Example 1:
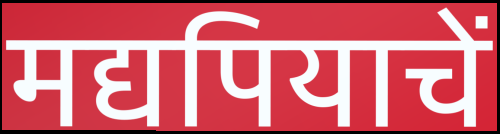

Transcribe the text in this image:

मद्यपियाचें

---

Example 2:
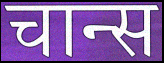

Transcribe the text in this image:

चान्स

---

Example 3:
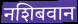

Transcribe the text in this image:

नशिबवान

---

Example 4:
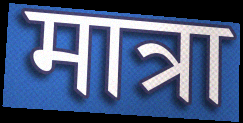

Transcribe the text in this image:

मात्रा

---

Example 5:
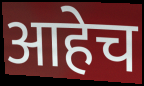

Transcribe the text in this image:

आहेच